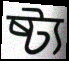
ষ্ট্য